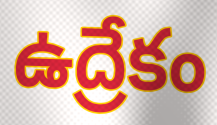
ఉద్రేకం